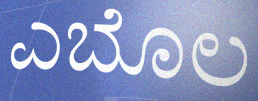
ಎಬೊಲ